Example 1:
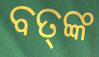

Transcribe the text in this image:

ବତ୍‍ଙ୍କ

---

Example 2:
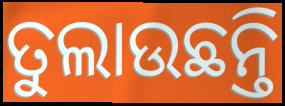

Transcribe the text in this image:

ତୁଲାଉଛନ୍ତି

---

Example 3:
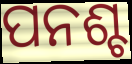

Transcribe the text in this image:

ପନଶ୍ଚ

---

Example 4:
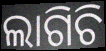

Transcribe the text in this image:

ଲାଗିଚି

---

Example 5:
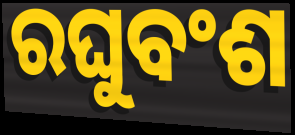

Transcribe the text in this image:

ରଘୁବଂଶ